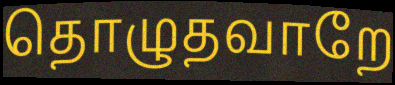
தொழுதவாறே